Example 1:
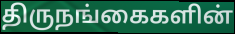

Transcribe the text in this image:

திருநங்கைகளின்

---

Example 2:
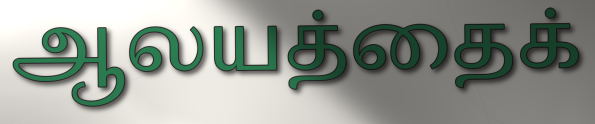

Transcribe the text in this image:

ஆலயத்தைக்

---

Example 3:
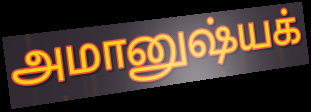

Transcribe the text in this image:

அமானுஷ்யக்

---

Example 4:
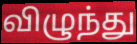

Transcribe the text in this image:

விழுந்து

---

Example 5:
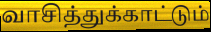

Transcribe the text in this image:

வாசித்துக்காட்டும்